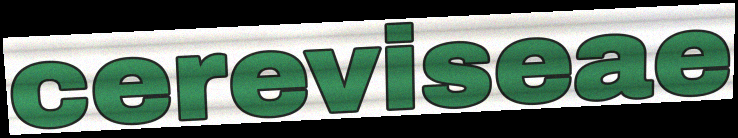
cereviseae